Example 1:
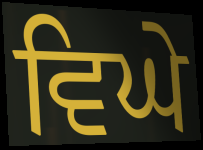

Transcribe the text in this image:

ਵਿਘੇ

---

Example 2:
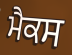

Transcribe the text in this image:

ਮੈਕਸ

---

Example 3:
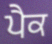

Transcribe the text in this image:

ਪੈਕ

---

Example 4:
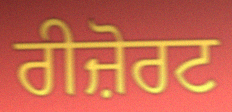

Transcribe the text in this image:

ਰੀਜ਼ੋਰਟ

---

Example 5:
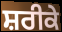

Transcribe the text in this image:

ਸ਼ਰੀਕੇ